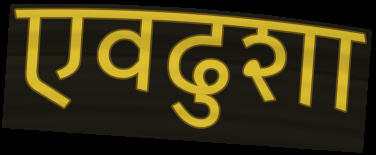
एवढुशा